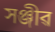
সঞ্জীৱ